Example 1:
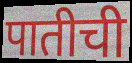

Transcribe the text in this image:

पातीची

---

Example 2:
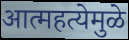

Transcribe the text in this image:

आत्महत्येमुळे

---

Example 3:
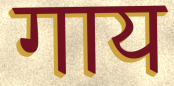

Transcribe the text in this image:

गाय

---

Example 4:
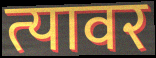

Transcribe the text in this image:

त्‍यावर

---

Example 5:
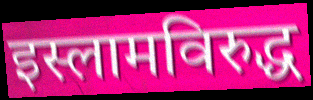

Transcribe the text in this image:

इस्लामविरुद्ध